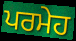
ਪਰਮੇਹ